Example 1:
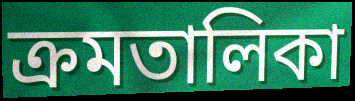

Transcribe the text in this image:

ক্রমতালিকা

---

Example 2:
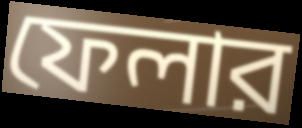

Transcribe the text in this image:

ফেলার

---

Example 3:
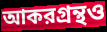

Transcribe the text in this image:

আকরগ্রন্থও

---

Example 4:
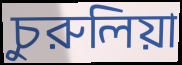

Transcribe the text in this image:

চুরুলিয়া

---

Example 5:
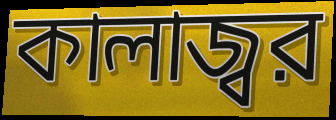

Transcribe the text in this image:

কালাজ্বর